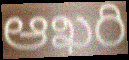
ఆఖరి